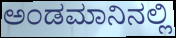
ಅಂಡಮಾನಿನಲ್ಲಿ